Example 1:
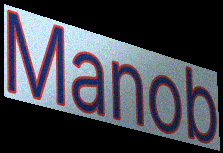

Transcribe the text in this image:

Manob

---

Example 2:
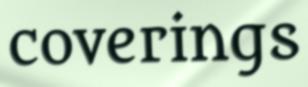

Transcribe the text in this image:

coverings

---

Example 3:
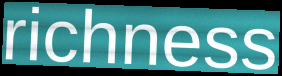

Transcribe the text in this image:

richness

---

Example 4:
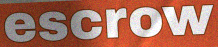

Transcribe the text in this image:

escrow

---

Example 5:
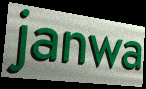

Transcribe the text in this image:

janwa